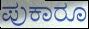
ಪುಕಾರೂ